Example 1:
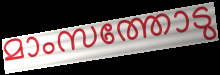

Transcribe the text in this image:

മാംസത്തോടു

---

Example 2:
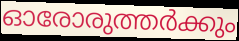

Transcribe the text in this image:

ഓരോരുത്തർക്കും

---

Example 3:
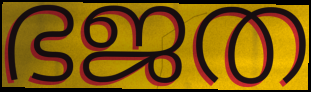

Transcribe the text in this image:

ഭജത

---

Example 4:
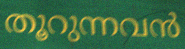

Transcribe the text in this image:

തൂറുന്നവൻ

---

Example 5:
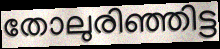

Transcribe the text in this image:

തോലുരിഞ്ഞിട്ട